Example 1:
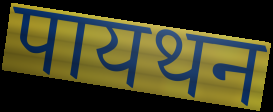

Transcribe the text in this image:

पायथन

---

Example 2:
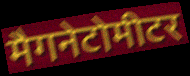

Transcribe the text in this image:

मैगनेटोमीटर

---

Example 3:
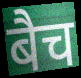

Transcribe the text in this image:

बैच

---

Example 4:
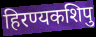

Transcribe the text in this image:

हिरण्यकशिपु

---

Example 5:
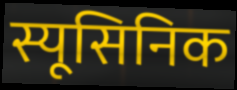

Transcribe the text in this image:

स्यूसिनिक